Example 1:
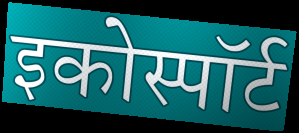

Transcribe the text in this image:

इकोस्पॉर्ट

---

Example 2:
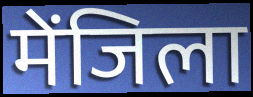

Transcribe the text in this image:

मेंजिला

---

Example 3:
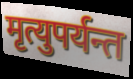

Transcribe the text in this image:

मृत्युपर्यन्त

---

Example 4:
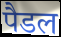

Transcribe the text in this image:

पैडल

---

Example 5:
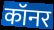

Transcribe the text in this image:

कॉनर